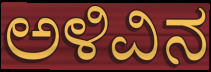
ಅಳಿವಿನ